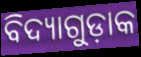
ବିଦ୍ୟାଗୁଡ଼ାକ